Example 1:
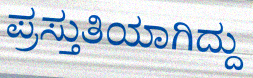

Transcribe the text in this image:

ಪ್ರಸ್ತುತಿಯಾಗಿದ್ದು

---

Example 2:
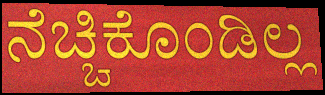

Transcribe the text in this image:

ನೆಚ್ಚಿಕೊಂಡಿಲ್ಲ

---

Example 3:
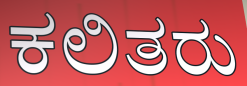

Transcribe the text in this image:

ಕಲಿತರು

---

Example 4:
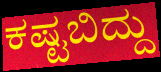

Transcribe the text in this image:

ಕಷ್ಟಬಿದ್ದು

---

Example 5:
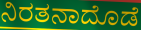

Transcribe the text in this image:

ನಿರತನಾದೊಡೆ